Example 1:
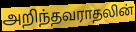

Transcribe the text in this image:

அறிந்தவராதலின்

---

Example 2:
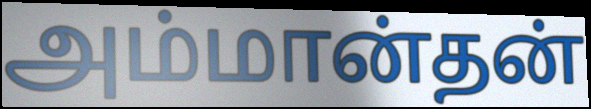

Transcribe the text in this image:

அம்மான்தன்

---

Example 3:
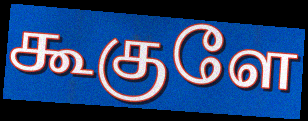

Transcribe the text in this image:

கூகுளே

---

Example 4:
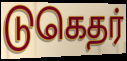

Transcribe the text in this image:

டுகெதர்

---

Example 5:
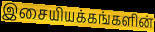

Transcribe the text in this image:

இசையியக்கங்களின்